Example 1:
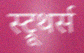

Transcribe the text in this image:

स्ट्रूथर्स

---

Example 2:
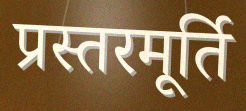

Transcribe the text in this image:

प्रस्तरमूर्ति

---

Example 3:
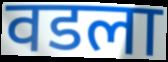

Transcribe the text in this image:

वडला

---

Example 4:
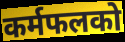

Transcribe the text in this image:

कर्मफलको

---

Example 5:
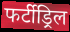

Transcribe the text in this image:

फर्टीड्रिल